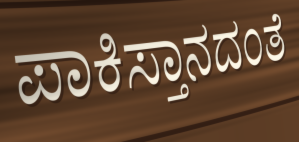
ಪಾಕಿಸ್ತಾನದಂತೆ